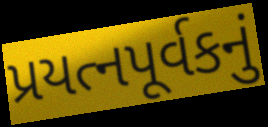
પ્રયત્નપૂર્વકનું